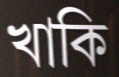
খাকি